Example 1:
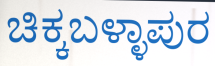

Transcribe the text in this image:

ಚಿಕ್ಕಬಳ್ಳಾಪುರ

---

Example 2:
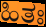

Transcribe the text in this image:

ಹಿತಃ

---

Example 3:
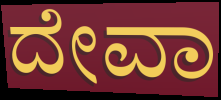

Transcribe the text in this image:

ದೇವಾ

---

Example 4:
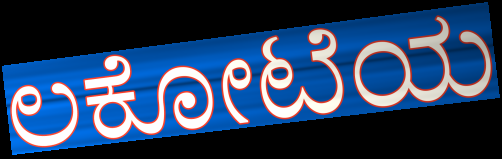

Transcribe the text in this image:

ಲಕೋಟೆಯ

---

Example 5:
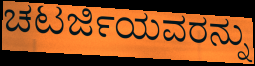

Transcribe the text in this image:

ಚಟರ್ಜಿಯವರನ್ನು